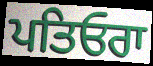
ਪਤਿਓਰਾ